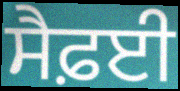
ਸੈਫ਼ਈ